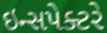
ઇન્સપેક્ટરે